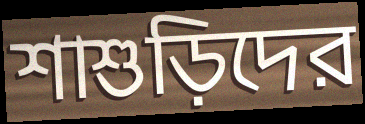
শাশুড়িদের